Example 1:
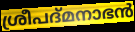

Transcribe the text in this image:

ശ്രീപദ്മനാഭൻ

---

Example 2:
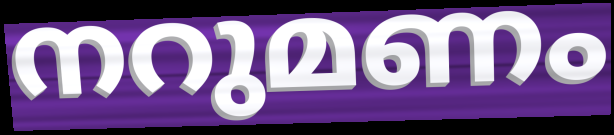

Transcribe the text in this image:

നറുമണം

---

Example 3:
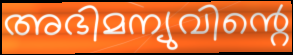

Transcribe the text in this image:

അഭിമന്യുവിന്റെ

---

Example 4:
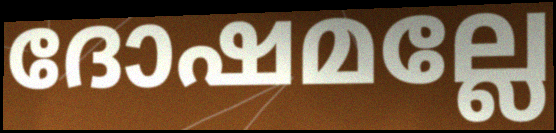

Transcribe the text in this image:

ദോഷമല്ലേ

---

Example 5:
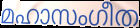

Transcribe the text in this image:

മഹാസംഗീത